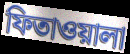
ফিতাওয়ালা